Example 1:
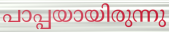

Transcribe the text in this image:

പാപ്പയായിരുന്നു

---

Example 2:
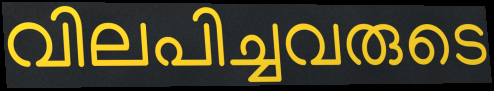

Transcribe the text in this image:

വിലപിച്ചവരുടെ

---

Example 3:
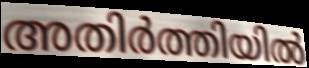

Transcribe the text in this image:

അതിർത്തിയിൽ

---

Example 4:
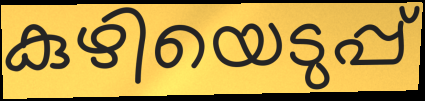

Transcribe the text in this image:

കുഴിയെടുപ്പ്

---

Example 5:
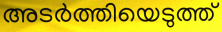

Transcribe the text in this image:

അടർത്തിയെടുത്ത്